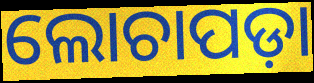
ଲୋଚାପଡ଼ା